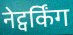
नेट्वर्किंग